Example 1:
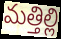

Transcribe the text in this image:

మత్తిల్లి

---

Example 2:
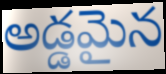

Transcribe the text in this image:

అడ్డమైన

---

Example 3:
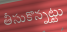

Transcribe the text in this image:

తీసుకొన్నట్టు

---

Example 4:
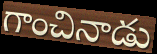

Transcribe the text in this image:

గాంచినాడు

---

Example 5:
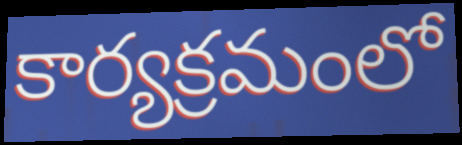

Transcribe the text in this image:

కార్యక్రమంలో